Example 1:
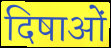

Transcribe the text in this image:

दिषाओं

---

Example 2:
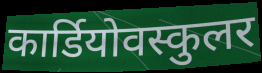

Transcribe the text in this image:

कार्डियोवस्कुलर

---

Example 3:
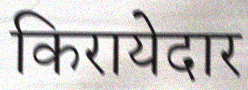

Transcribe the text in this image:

किरायेदार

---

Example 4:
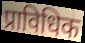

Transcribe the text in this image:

प्राविधिक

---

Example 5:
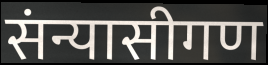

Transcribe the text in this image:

संन्यासीगण